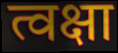
त्वक्षा